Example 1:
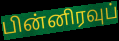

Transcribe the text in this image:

பின்னிரவுப்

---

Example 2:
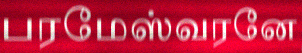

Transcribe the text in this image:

பரமேஸ்வரனே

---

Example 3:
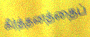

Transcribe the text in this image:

கீர்த்தனத்தைப்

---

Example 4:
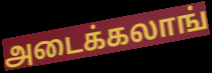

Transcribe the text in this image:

அடைக்கலாங்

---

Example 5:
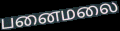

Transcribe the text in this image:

பனைமலை